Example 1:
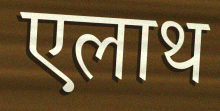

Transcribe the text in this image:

एलाथ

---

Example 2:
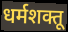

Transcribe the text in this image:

धर्मशक्तू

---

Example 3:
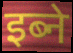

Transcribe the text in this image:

इब्ने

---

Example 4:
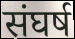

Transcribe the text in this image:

संघर्ष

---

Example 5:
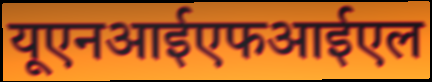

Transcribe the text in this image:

यूएनआईएफआईएल